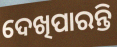
ଦେଖିପାରନ୍ତି